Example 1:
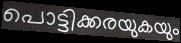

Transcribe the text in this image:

പൊട്ടിക്കരയുകയും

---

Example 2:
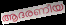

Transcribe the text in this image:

ആദരണീയ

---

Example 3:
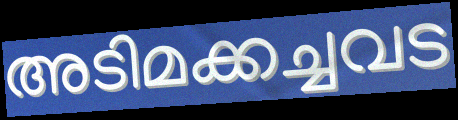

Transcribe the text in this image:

അടിമക്കച്ചവട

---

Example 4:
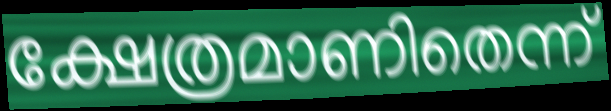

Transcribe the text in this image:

ക്ഷേത്രമാണിതെന്ന്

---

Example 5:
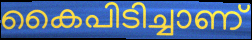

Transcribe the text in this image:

കൈപിടിച്ചാണ്